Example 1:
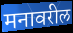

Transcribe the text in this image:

मनावरील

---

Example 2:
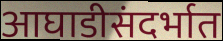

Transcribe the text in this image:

आघाडीसंदर्भात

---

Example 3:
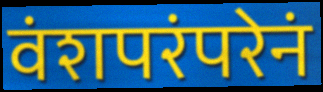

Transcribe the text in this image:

वंशपरंपरेनं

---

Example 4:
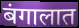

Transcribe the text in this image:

बंगालात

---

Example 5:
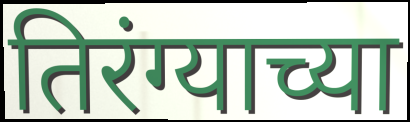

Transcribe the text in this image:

तिरंग्याच्या